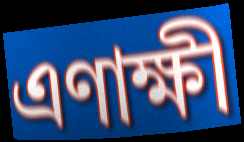
এণাক্ষী